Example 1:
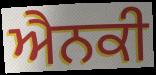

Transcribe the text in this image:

ਐਨਕੀ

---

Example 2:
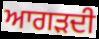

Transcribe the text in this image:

ਆਗੜਦੀ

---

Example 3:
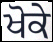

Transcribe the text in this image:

ਖੋਕੇ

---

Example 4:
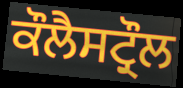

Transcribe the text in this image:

ਕੌਲੈਸਟ੍ਰੌਲ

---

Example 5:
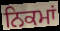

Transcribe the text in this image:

ਨਿਕਮਾਂ